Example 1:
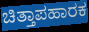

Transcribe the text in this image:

ಚಿತ್ತಾಪಹಾರಕ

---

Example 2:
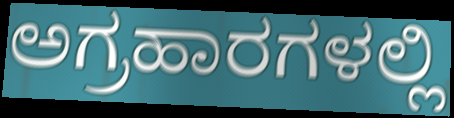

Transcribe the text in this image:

ಅಗ್ರಹಾರಗಳಲ್ಲಿ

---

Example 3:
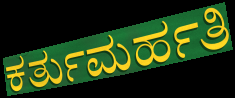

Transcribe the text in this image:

ಕರ್ತುಮರ್ಹತಿ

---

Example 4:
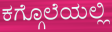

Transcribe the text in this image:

ಕಗ್ಗೊಲೆಯಲ್ಲಿ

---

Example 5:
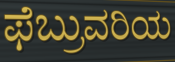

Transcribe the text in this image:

ಫೆಬ್ರುವರಿಯ